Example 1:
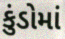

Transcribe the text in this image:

કુંડોમાં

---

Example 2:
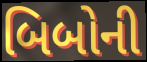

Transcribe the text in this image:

બિબોની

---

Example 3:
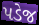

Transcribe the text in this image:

પડેજ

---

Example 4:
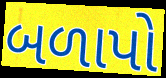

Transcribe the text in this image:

બળાપો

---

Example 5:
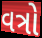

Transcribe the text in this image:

વત્રો